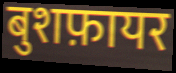
बुशफ़ायर